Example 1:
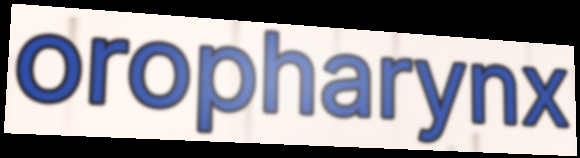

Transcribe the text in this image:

oropharynx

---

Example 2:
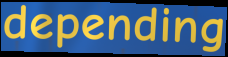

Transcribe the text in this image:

depending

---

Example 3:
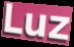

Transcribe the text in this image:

Luz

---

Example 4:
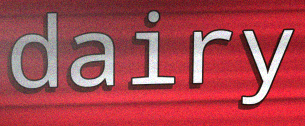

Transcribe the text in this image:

dairy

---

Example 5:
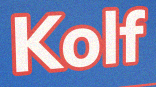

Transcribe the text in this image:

Kolf